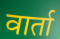
वार्ता